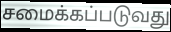
சமைக்கப்படுவது